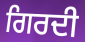
ਗਿਰਦੀ